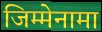
जिम्मेनामा